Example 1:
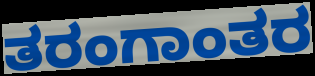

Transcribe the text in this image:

ತರಂಗಾಂತರ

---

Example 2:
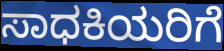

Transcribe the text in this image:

ಸಾಧಕಿಯರಿಗೆ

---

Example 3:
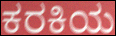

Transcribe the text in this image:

ಕರಕಿಯ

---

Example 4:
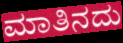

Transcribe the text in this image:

ಮಾತಿನದು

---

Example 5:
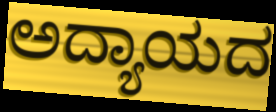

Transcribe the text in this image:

ಅದ್ಯಾಯದ